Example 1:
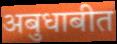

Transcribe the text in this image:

अबुधाबीत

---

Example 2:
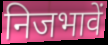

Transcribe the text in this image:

निजभावें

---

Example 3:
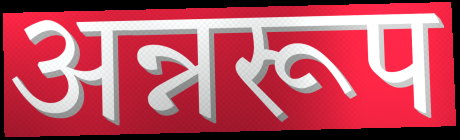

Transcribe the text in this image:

अन्नरूप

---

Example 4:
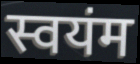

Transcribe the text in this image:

स्वयंम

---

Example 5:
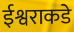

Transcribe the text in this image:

ईश्वराकडे